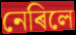
নেৰিলে